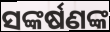
ସଙ୍କର୍ଷଣଙ୍କ